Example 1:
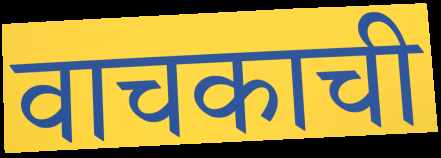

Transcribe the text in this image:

वाचकाची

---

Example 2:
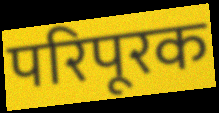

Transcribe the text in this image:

परिपूरक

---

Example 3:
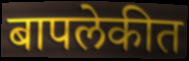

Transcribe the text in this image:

बापलेकीत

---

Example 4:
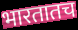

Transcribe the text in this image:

भारतातच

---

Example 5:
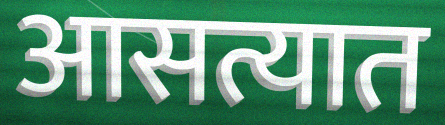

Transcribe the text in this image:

आसत्यात